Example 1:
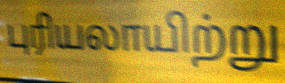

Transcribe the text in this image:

புரியலாயிற்று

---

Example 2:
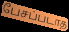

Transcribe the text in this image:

பேசப்படாத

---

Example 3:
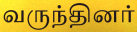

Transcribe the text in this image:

வருந்தினர்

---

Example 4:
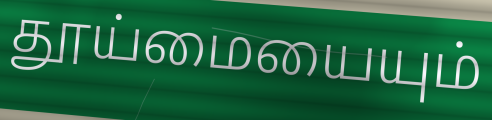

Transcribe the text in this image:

தூய்மையையும்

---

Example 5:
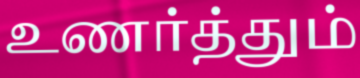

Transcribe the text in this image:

உணர்த்தும்